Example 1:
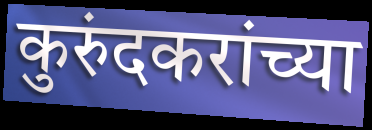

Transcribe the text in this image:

कुरुंदकरांच्या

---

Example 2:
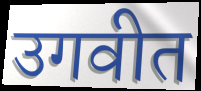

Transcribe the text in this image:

उगवीत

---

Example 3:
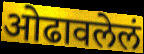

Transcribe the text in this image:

ओढावलेलं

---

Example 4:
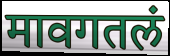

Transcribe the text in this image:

मावगतलं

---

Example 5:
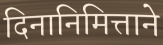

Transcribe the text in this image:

दिनानिमित्ताने